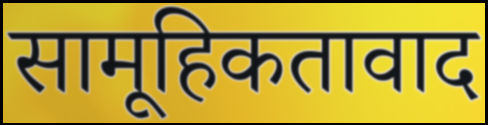
सामूहिकतावाद